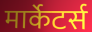
मार्केटर्स